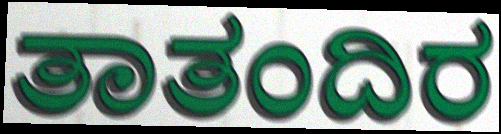
ತಾತಂದಿರ